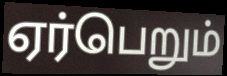
ஏர்பெறும்